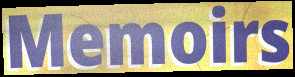
Memoirs